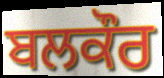
ਬਲਕੌਰ